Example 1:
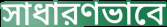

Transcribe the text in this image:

সাধারণভাবে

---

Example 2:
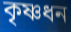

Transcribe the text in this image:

কৃষ্ণধন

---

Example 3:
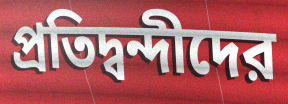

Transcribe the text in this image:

প্রতিদ্বন্দীদের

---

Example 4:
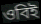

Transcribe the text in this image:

ওবিই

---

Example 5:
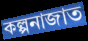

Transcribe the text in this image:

কল্পনাজাত